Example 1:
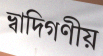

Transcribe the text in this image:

ভ্বাদিগণীয়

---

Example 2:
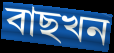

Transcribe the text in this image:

বাছখন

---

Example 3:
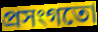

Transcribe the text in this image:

প্ৰসংগতো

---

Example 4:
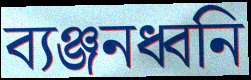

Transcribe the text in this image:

ব্যঞ্জনধ্বনি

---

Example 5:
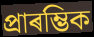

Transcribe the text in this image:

প্ৰাৰম্ভিক